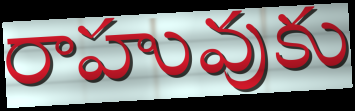
రాహువుకు